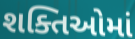
શક્તિઓમાં